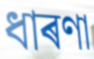
ধাৰণা